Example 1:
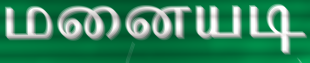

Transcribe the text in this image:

மனையடி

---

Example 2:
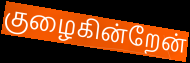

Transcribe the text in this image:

குழைகின்றேன்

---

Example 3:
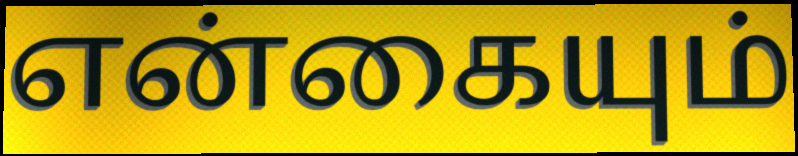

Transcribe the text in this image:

என்கையும்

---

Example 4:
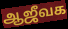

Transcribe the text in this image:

ஆஜீவக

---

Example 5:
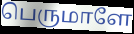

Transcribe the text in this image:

பெருமாளே